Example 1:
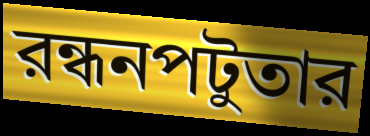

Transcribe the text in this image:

রন্ধনপটুতার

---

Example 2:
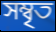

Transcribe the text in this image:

সম্বৃত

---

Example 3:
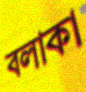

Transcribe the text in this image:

বলাকা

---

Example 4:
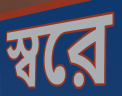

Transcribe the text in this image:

স্বরে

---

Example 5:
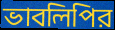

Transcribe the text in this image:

ভাবলিপির